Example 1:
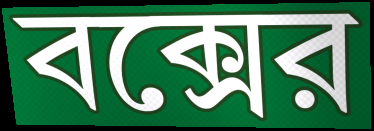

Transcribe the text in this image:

বক্সের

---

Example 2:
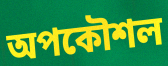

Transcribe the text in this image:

অপকৌশল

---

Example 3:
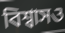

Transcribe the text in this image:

বিশ্বাসও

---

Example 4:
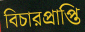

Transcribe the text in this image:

বিচারপ্রাপ্তি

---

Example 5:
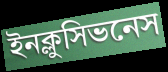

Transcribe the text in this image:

ইনক্লুসিভনেস